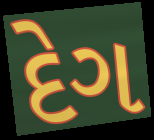
દેગ